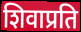
शिवाप्रति